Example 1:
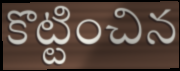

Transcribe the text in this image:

కొట్టించిన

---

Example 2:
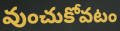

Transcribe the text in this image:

వుంచుకోవటం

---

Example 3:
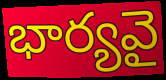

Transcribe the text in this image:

భార్యవై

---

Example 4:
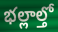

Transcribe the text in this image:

భల్లాల్తో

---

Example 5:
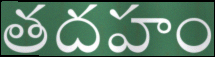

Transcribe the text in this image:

తదహం